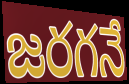
జరగనే